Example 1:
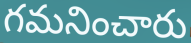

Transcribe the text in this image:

గమనించారు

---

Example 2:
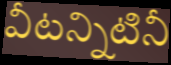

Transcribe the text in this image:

వీటన్నిటినీ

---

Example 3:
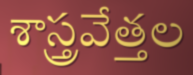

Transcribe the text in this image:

శాస్త్రవేత్తల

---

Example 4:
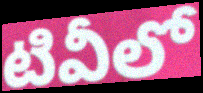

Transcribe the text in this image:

టివీలో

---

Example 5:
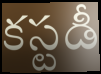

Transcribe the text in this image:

కస్టడీ